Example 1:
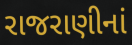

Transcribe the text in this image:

રાજરાણીનાં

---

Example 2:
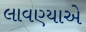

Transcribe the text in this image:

લાવણ્યાએ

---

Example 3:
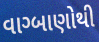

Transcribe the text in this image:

વાગ્બાણોથી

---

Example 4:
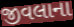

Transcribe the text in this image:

જીવલાના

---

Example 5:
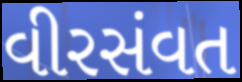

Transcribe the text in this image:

વીરસંવત